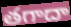
తగాదా